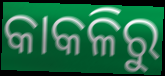
କାକଳିରୁ